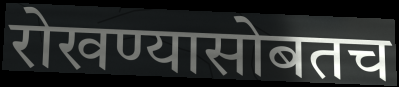
रोखण्यासोबतच